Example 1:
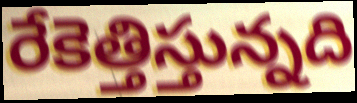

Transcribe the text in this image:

రేకెత్తిస్తున్నది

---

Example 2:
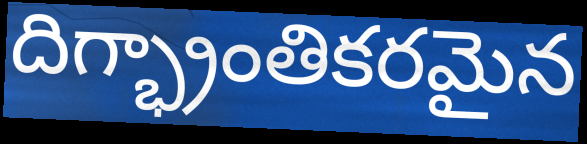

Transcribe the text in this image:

దిగ్భ్రాంతికరమైన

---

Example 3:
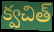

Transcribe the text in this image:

క్వచిత్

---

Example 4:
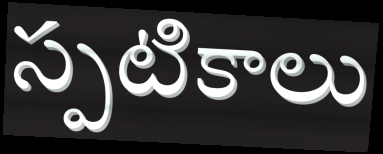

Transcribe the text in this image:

స్పటికాలు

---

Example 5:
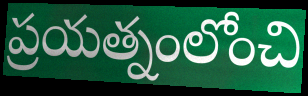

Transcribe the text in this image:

ప్రయత్నంలోంచి